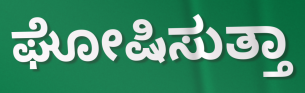
ಘೋಷಿಸುತ್ತಾ